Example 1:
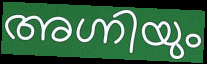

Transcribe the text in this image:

അഗ്നിയും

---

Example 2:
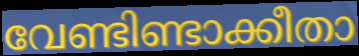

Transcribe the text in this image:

വേണ്ടിണ്ടാക്കീതാ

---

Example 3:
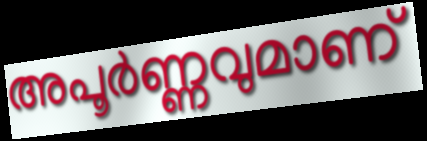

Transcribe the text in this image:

അപൂർണ്ണവുമാണ്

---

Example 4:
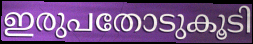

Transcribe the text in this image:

ഇരുപതോടുകൂടി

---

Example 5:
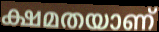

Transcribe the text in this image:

ക്ഷമതയാണ്